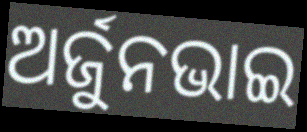
ଅର୍ଜୁନଭାଇ